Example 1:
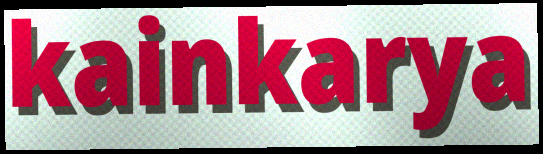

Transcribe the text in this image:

kainkarya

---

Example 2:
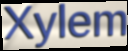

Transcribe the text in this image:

Xylem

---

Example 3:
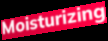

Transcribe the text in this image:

Moisturizing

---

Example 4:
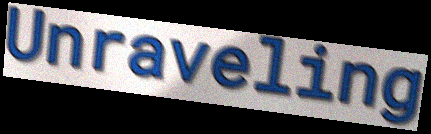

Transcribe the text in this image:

Unraveling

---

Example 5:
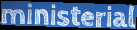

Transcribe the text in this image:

ministerial